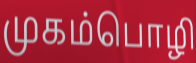
முகம்பொழி